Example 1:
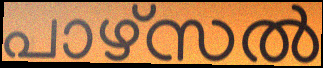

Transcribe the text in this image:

പാഴ്സൽ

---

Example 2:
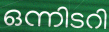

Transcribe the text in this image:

ഒന്നിടറി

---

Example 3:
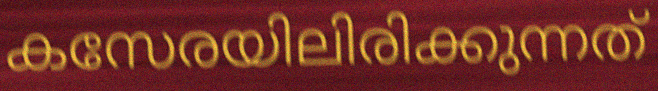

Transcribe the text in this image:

കസേരയിലിരിക്കുന്നത്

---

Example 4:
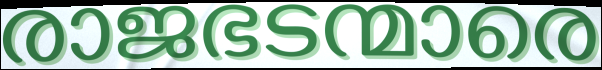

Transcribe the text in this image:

രാജഭടന്മാരെ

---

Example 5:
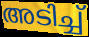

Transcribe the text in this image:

അടിച്ച്